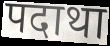
पदाथा